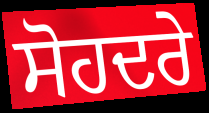
ਸੋਹਦਰੇ